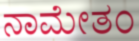
ನಾಮೇತಂ